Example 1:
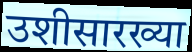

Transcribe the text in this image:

उशीसारख्या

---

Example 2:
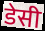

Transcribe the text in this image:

डेसी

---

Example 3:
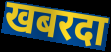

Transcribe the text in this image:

खबरदा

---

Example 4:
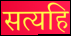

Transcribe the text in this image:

सत्यहि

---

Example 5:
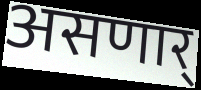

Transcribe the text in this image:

असणार्